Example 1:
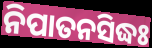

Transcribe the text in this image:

ନିପାତନସିଦ୍ଧଃ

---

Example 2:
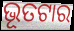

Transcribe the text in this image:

ଭୂତଟାର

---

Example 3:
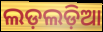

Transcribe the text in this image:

ଲଡ଼ଲଡ଼ିଆ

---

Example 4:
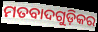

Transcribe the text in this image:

ମତବାଦଗୁଡ଼ିକର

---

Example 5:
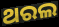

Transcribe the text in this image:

ଥରଲ